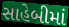
સાહેબીમાં